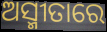
ଅସ୍ମୀତାରେ